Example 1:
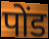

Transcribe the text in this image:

पोंड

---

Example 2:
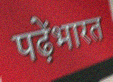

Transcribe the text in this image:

पढ़ेंभारत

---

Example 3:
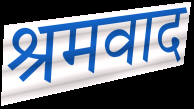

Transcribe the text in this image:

श्रमवाद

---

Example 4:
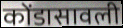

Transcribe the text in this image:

कोंडासावली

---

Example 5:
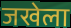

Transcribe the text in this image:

जखेला